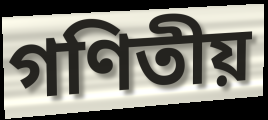
গণিতীয়